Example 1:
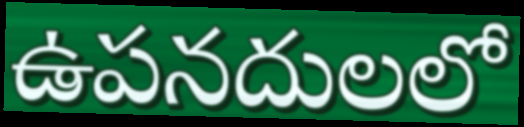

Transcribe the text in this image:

ఉపనదులలో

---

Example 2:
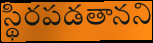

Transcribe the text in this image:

స్థిరపడతానని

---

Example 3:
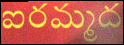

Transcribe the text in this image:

ఐరమ్మద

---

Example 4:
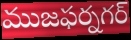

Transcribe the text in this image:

ముజఫర్నగర్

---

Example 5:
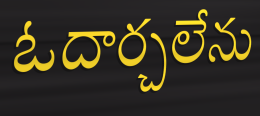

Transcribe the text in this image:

ఓదార్చలేను